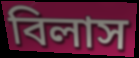
বিলাস